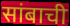
सांबाची